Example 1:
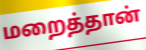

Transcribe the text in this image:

மறைத்தான்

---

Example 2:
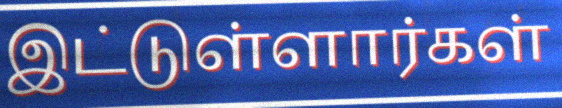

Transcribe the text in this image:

இட்டுள்ளார்கள்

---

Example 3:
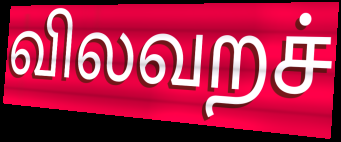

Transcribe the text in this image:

விலவறச்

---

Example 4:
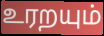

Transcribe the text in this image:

உரறயும்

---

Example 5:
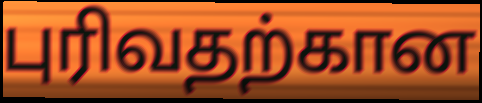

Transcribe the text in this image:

புரிவதற்கான